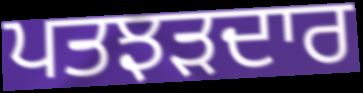
ਪਤਝੜਦਾਰ